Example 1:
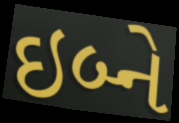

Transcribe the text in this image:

ઇબ્ને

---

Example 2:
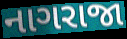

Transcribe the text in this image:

નાગરાજા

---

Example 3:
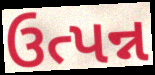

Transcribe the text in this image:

ઉત્પન્ન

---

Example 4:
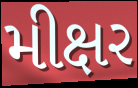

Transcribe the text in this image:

મીક્ષર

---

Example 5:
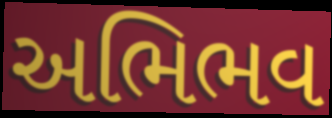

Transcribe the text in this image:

અભિભવ